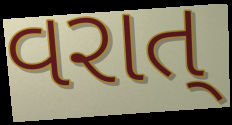
વરાત્